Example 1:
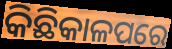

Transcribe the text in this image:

କିଛିକାଳପରେ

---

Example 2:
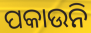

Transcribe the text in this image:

ପକାଉନି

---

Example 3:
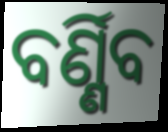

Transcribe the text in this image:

ବର୍ଣ୍ଣିବ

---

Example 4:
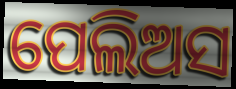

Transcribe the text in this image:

ପେଲିଅସ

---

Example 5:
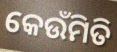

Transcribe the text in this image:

କେଉଁମିତି